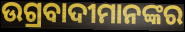
ଉଗ୍ରବାଦୀମାନଙ୍କର